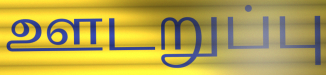
ஊடறுப்பு